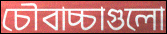
চৌবাচ্চাগুলো